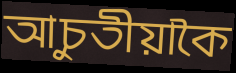
আচুতীয়াকৈ